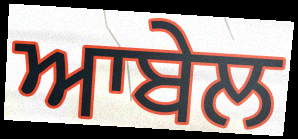
ਆਬੇਲ